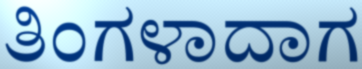
ತಿಂಗಳಾದಾಗ